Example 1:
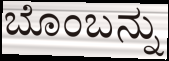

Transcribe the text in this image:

ಬೊಂಬನ್ನು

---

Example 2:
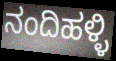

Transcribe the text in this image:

ನಂದಿಹಳ್ಳಿ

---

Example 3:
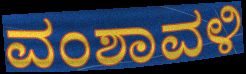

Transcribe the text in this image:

ವಂಶಾವಳಿ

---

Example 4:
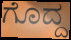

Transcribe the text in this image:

ಗೊದ್ದ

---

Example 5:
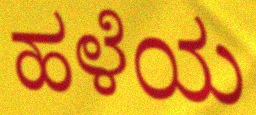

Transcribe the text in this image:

ಹಳೆಯ